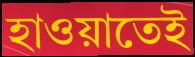
হাওয়াতেই